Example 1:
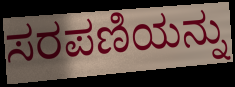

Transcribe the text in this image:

ಸರಪಣಿಯನ್ನು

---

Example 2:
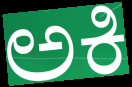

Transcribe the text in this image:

ಅಕಿ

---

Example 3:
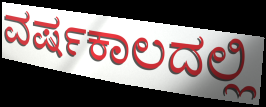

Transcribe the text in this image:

ವರ್ಷಕಾಲದಲ್ಲಿ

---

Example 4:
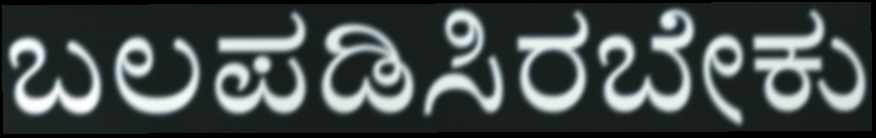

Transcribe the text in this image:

ಬಲಪಡಿಸಿರಬೇಕು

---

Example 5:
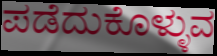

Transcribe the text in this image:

ಪಡೆದುಕೊಳ್ಳುವ